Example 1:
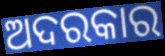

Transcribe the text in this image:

ଅଦରକାର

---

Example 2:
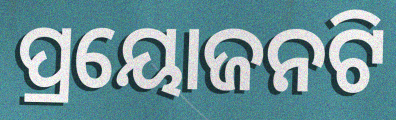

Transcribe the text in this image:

ପ୍ରୟୋଜନଟି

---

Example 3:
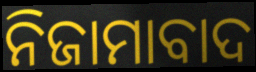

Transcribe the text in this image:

ନିଜାମାବାଦ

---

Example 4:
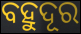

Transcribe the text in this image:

ବହୁଦୂର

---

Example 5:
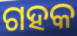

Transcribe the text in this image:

ଗହକ